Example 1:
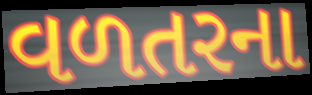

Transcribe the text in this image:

વળતરના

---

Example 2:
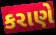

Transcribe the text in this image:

કરાણે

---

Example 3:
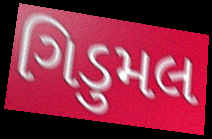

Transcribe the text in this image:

ગિડુમલ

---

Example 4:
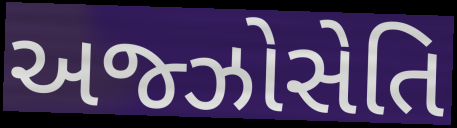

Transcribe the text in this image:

અજ્ઝોસેતિ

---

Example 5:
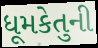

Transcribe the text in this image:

ધૂમકેતુની